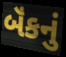
બૅંકનું